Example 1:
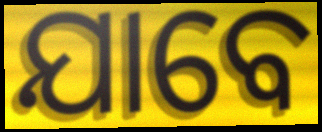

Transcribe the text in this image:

ଯାବେ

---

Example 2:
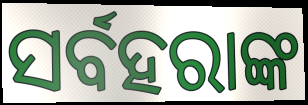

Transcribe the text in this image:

ସର୍ବହରାଙ୍କ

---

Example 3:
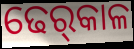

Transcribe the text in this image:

ଢେର୍‌କାଳ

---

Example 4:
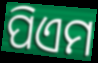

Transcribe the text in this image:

ପିଏମ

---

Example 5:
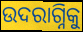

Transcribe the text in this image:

ଉଦରାଗ୍ନିକୁ